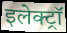
इलेक्ट्रॉ